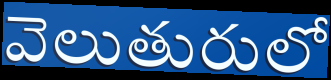
వెలుతురులో